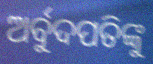
ଅର୍ବୁଦପତିଙ୍କୁ